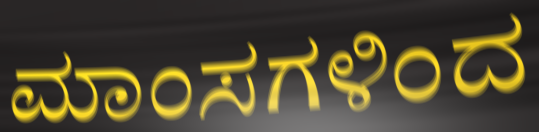
ಮಾಂಸಗಳಿಂದ